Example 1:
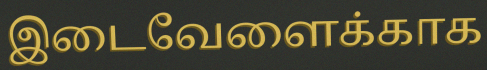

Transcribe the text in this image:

இடைவேளைக்காக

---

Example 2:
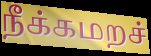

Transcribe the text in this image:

நீக்கமறச்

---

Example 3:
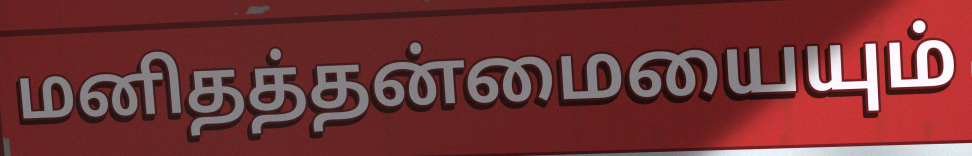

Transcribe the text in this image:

மனிதத்தன்மையையும்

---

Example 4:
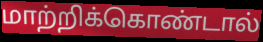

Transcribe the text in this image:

மாற்றிக்கொண்டால்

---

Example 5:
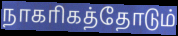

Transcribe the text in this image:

நாகரிகத்தோடும்